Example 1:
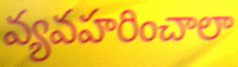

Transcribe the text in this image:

వ్యవహరించాలా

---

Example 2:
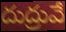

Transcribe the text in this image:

దుద్రువే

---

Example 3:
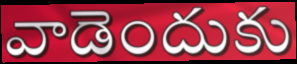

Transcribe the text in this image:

వాడెందుకు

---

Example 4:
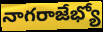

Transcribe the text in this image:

నాగరాజేభ్యో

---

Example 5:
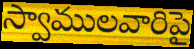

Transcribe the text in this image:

స్వాములవారిపై